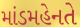
માંડમહેનતે